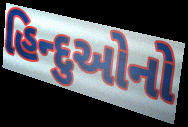
હિન્દુઓનો